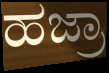
ಹಜ್ರಾ